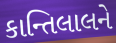
કાન્તિલાલને